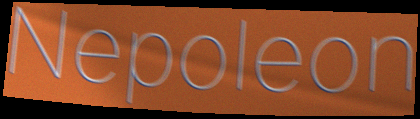
Nepoleon